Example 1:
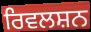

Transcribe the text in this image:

ਰਿਵਲਸ਼ਨ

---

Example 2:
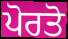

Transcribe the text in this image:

ਪੋਰਤੋ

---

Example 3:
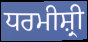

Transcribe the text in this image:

ਧਰਮੀਸ਼੍ਰੀ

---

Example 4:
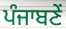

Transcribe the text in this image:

ਪੰਜਾਬਣੇਂ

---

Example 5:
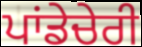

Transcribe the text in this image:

ਪਾਂਡੇਚੇਰੀ